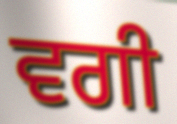
ਵਗੀ